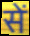
सें